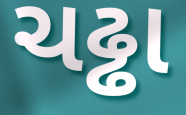
ચઢ્ઢા